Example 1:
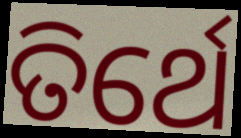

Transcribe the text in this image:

ତିର୍ଥେ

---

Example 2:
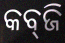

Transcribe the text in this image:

କବ୍‍ଜି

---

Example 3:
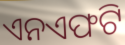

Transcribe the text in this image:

ଏନଏଫଟି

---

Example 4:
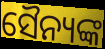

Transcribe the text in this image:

ସୈନ୍ୟଙ୍କ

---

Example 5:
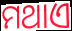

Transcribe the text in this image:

ମଥାଏ